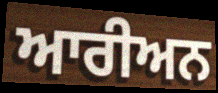
ਆਰੀਅਨ